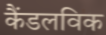
कैंडलविक